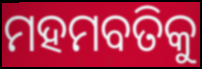
ମହମବତିକୁ